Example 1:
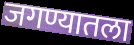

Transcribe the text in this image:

जगण्यातला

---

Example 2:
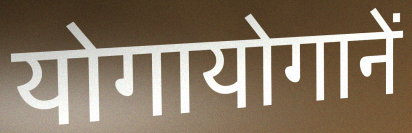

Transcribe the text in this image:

योगायोगानें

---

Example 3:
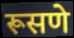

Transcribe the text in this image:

रूसणे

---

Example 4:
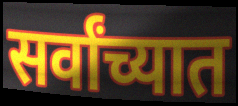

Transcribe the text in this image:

सर्वांच्यात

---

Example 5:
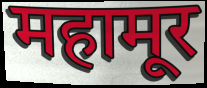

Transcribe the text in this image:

महामूर